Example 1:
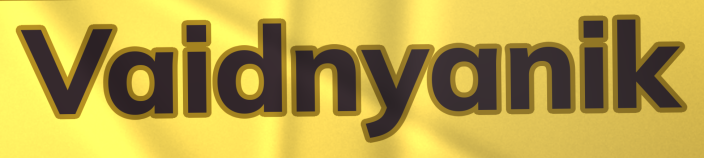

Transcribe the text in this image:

Vaidnyanik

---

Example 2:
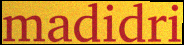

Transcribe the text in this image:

madidri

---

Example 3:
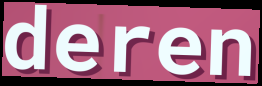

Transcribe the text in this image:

deren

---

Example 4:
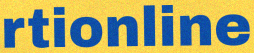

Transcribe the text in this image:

rtionline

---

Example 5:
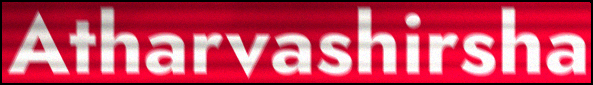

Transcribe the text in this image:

Atharvashirsha